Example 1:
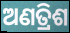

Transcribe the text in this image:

ଅଣତ୍ରିଶ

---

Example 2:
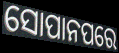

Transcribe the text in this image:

ସୋପାନପରେ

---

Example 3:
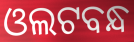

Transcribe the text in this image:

ଓଲଟବନ୍ଧ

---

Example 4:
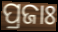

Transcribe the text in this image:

ପ୍ରଜାଃ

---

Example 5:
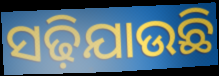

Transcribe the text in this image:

ସଢ଼ିଯାଉଛି